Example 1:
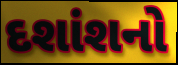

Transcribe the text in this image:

દશાંશનો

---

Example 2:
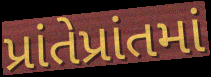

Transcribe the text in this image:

પ્રાંતેપ્રાંતમાં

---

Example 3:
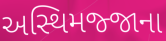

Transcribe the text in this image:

અસ્થિમજ્જાના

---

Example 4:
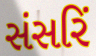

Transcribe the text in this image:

સંસરિં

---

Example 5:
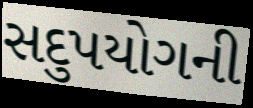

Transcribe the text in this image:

સદુપયોગની